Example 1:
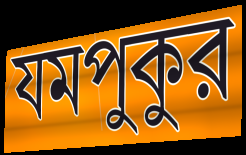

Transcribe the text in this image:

যমপুকুর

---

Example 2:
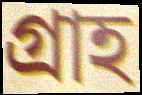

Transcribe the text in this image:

গ্রাহ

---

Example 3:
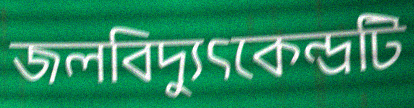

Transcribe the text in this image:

জলবিদ্যুৎকেন্দ্রটি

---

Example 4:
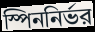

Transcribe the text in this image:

স্পিননির্ভর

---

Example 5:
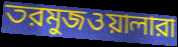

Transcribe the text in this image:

তরমুজওয়ালারা